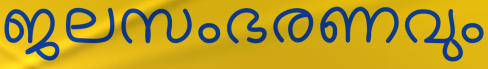
ജലസംഭരണവും